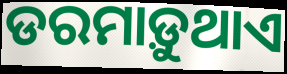
ଡରମାଡ଼ୁଥାଏ